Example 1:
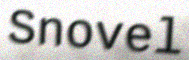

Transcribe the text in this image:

Snovel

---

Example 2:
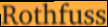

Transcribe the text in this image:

Rothfuss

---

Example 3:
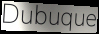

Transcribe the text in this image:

Dubuque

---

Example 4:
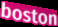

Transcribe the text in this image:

boston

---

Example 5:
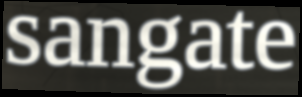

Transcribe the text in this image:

sangate